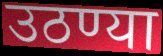
उठण्या